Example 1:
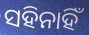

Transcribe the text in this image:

ସହିନାହିଁ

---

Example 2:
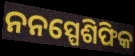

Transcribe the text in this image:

ନନସ୍ପେଶିଫିକ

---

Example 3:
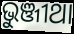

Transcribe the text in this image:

ଭୁଞ୍ଜୀଥା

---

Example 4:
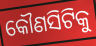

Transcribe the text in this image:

କୌଣସିଟିକୁ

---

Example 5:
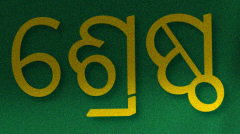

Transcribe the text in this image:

ଶ୍ରେଷ୍ଠ